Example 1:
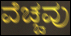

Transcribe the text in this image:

ವೆಚ್ಚವು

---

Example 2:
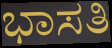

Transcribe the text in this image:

ಭಾಸತಿ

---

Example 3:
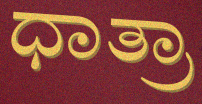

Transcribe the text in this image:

ಧಾತ್ರಾ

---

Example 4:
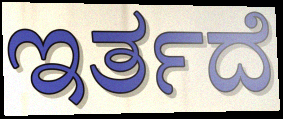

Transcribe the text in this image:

ಇರ್ತದೆ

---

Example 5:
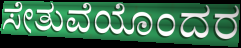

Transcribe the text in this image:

ಸೇತುವೆಯೊಂದರ